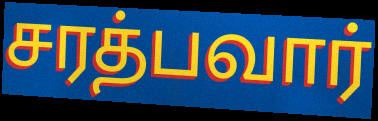
சரத்பவார்